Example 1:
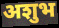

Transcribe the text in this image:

अशुभ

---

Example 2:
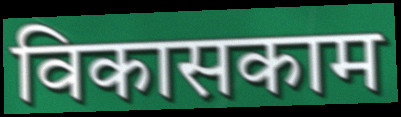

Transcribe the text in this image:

विकासकाम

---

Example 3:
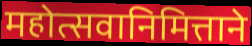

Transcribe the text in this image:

महोत्सवानिमित्ताने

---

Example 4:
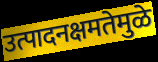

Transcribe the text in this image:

उत्पादनक्षमतेमुळे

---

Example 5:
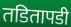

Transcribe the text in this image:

तडितापडी